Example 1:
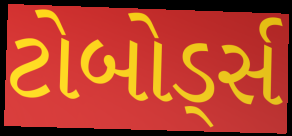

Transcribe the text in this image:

ટોબોર્ડ્સ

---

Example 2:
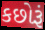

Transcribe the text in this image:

કછોરૂં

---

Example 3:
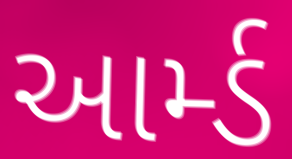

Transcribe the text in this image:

આર્મ્ડ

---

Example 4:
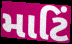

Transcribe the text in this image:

માટિં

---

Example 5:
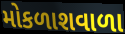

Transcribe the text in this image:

મોકળાશવાળા